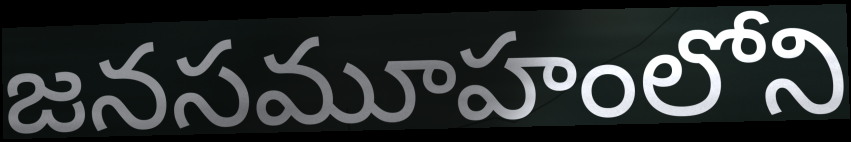
జనసమూహంలోని